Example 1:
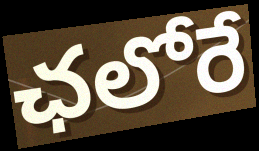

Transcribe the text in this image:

ఛలోరే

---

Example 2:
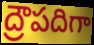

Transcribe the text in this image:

ద్రౌపదిగా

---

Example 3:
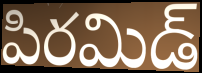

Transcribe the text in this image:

పిరమిడ్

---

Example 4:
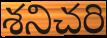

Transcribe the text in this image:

శనిచరి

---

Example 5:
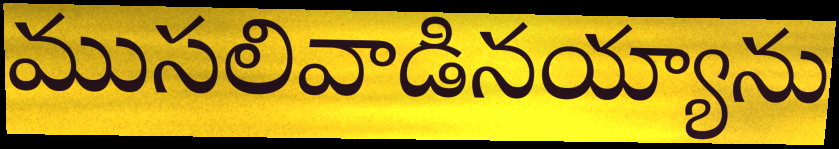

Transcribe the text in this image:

ముసలివాడినయ్యాను